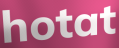
hotat